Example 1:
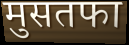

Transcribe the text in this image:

मुसतफा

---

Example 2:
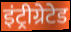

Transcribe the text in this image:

इंट्रीग्रेटेड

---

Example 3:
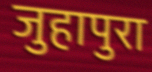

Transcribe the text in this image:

जुहापुरा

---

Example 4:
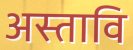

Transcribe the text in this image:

अस्तावि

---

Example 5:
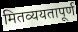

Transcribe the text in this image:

मितव्ययतापूर्ण